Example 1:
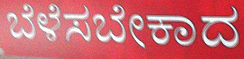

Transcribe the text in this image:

ಬೆಳೆಸಬೇಕಾದ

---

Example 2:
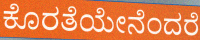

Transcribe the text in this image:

ಕೊರತೆಯೇನೆಂದರೆ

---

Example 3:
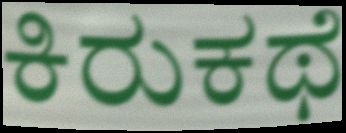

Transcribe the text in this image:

ಕಿರುಕಥೆ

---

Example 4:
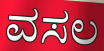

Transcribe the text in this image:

ವಸಲ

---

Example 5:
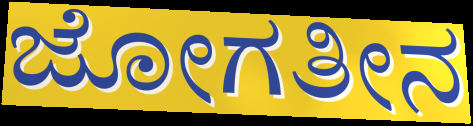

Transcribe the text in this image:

ಜೋಗತೀನ